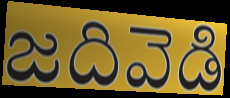
జదివెడి